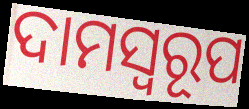
ଦାମସ୍ୱରୂପ